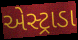
એસ્ટ્રાડા